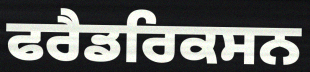
ਫਰੈਡਰਿਕਸਨ